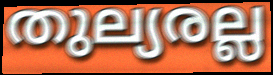
തുല്യരല്ല